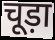
चूड़ा